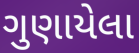
ગુણાયેલા